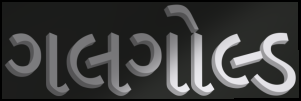
ગલગોલ્ડ